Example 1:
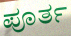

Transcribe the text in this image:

ಪೂರ್ತ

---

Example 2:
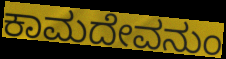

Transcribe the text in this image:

ಕಾಮದೇವನುಂ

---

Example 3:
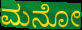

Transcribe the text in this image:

ಮನೋ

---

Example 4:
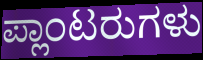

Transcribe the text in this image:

ಪ್ಲಾಂಟರುಗಳು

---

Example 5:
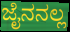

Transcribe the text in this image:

ಜೈನನಲ್ಲ